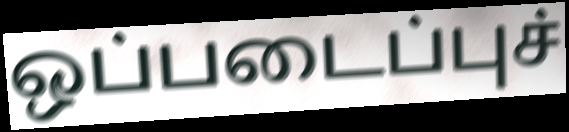
ஒப்படைப்புச்